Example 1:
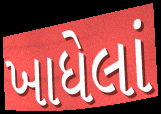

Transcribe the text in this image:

ખાધેલાં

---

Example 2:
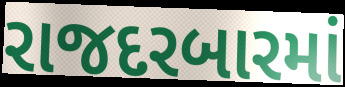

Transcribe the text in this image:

રાજદરબારમાં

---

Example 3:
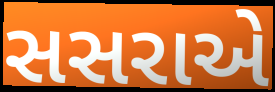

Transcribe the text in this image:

સસરાએ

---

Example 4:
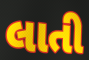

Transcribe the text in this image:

લાતી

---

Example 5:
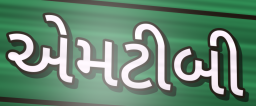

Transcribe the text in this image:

એમટીબી